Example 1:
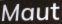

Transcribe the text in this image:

Maut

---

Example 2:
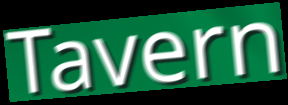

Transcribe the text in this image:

Tavern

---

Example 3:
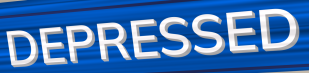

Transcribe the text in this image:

DEPRESSED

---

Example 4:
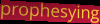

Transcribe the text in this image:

prophesying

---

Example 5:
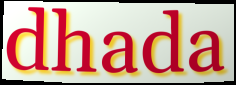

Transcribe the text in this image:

dhada